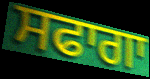
ਸਫਾਗਾ